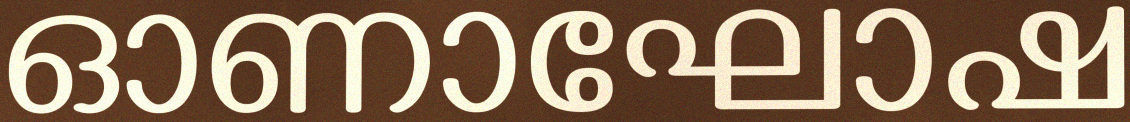
ഓണാഘോഷ